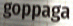
goppaga